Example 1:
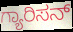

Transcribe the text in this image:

ಗ್ಯಾರಿಸನ್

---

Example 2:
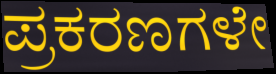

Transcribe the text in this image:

ಪ್ರಕರಣಗಳೇ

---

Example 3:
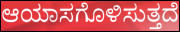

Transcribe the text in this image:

ಆಯಾಸಗೊಳಿಸುತ್ತದೆ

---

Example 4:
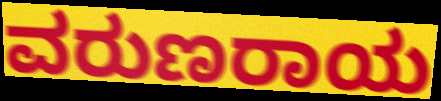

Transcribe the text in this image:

ವರುಣರಾಯ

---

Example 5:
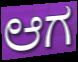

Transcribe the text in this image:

ಆಗ